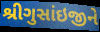
શ્રીગુસાંઇજીને